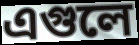
এগুলে